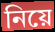
নিয়ে